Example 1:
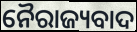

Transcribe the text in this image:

ନୈରାଜ୍ୟବାଦ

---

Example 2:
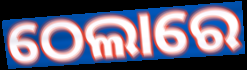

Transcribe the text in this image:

ଠେଲାରେ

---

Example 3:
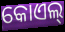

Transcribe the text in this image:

କୋଏଲ୍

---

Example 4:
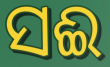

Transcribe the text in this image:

ସଈ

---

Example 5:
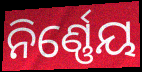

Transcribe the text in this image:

ନିର୍ଣ୍ଣେୟ